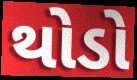
થોડો